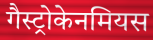
गैस्ट्रोकेनमियस